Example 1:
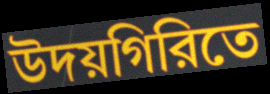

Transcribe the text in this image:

উদয়গিরিতে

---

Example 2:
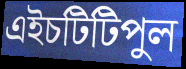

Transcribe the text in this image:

এইচটিটিপুল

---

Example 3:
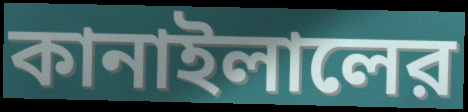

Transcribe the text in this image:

কানাইলালের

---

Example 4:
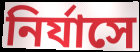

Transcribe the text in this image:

নির্যাসে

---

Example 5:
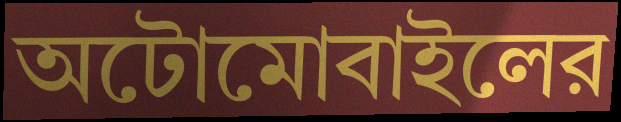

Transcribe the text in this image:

অটোমোবাইলের